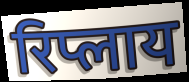
रिप्लाय